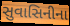
સુવાસિનીના